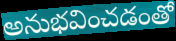
అనుభవించడంతో